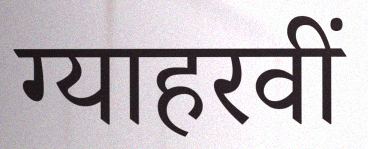
ग्याहरवीं